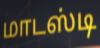
மாடஸ்டி